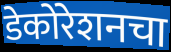
डेकोरेशनचा